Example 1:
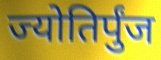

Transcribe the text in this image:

ज्योतिर्पुंज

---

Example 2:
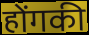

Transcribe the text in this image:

होंगकी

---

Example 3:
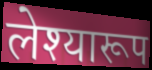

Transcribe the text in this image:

लेश्यारूप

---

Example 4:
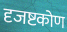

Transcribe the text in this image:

दृजष्टकोण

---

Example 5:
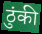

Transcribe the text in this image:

ठुंकी